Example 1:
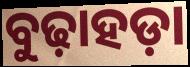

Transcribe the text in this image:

ବୁଢ଼ାହଡ଼ା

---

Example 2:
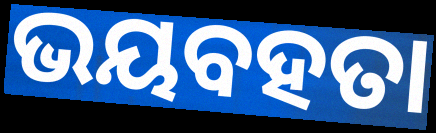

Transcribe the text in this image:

ଭୟବହତା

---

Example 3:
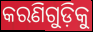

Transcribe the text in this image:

କରଣିଗୁଡ଼ିକୁ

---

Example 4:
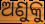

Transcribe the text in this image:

ଅଣୁକୁ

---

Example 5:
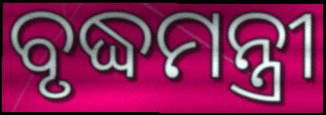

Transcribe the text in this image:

ବୃଦ୍ଧମନ୍ତ୍ରୀ